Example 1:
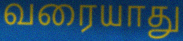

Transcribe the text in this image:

வரையாது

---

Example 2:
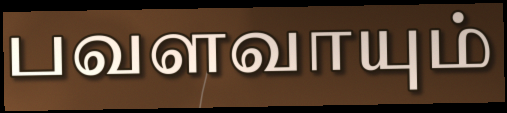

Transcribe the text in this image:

பவளவாயும்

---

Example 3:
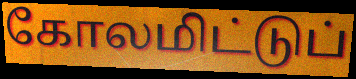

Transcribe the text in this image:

கோலமிட்டுப்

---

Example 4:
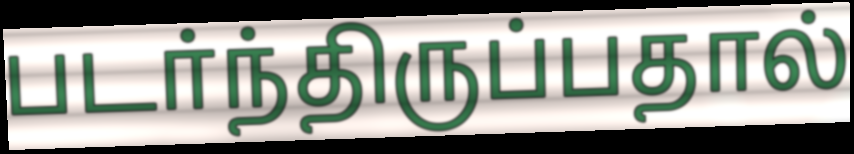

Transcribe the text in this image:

படர்ந்திருப்பதால்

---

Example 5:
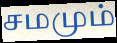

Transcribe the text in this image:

சமமும்